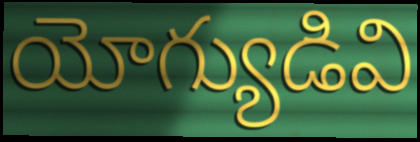
యోగ్యుడివి